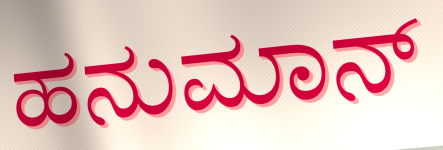
ಹನುಮಾನ್